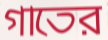
গাতের